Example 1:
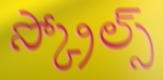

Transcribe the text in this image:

స్క్రోల్స్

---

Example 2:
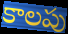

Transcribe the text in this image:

కాలపు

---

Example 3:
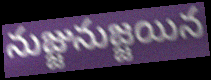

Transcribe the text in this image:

నుజ్జునుజ్జయిన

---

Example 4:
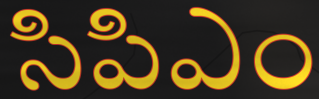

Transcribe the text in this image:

సిపిఎం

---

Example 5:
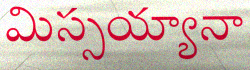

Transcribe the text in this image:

మిస్సయ్యానా